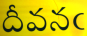
దీవనఁ